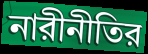
নারীনীতির